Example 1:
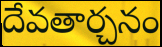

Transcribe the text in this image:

దేవతార్చనం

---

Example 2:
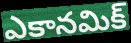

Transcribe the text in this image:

ఎకానమిక్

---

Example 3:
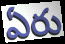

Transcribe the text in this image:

ఏరు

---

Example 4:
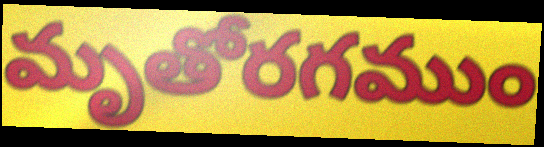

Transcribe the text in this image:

మృతోరగముం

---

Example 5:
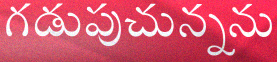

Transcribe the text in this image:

గడుపుచున్నను